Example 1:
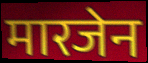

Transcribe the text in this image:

मारजेन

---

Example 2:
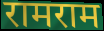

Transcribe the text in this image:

रामराम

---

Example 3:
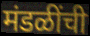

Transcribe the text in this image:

मंडळींची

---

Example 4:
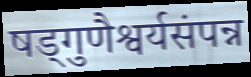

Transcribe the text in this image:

षड्‌गुणैश्वर्यसंपन्न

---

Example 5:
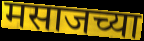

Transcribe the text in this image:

मसाजच्या